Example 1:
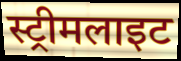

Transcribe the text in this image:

स्ट्रीमलाइट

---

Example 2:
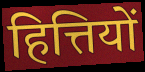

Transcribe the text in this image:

हित्तियों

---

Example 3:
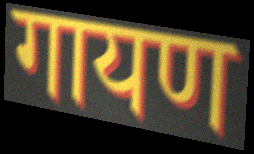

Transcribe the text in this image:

गायण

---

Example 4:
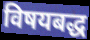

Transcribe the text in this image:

विषयबद्ध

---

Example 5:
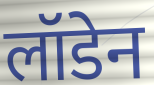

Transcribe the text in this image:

लॉडेन